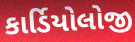
કાર્ડિયોલોજી